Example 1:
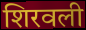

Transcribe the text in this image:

शिरवली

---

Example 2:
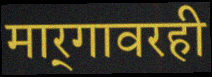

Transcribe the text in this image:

मार्गावरही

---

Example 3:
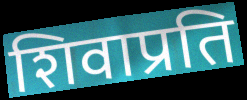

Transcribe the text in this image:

शिवाप्रति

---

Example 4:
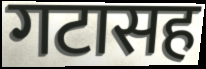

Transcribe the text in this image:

गटासह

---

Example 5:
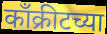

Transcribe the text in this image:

काँक्रीटच्या